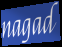
nagad